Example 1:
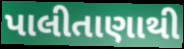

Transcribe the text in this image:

પાલીતાણાથી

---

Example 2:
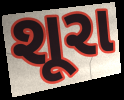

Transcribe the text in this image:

શૂરા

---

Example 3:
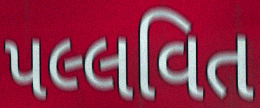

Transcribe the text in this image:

પલ્લવિત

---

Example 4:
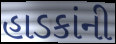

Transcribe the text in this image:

હાડકાંની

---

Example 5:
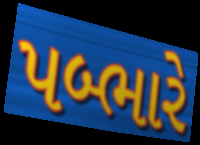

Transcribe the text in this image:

પબ્ભારે